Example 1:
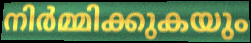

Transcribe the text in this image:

നിർമ്മിക്കുകയും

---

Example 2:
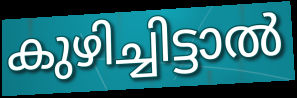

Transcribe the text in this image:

കുഴിച്ചിട്ടാൽ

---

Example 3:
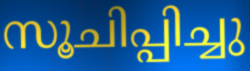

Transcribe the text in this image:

സൂചിപ്പിച്ചു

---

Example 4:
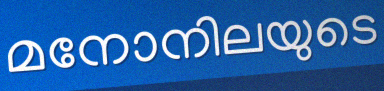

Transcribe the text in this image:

മനോനിലയുടെ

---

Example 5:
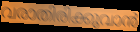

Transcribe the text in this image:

വരാതിരിക്കുവാൻ